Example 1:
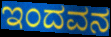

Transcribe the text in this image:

ಇಂದವನ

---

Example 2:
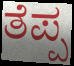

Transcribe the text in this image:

ತೆಪ್ಪ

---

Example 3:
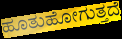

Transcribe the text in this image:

ಹೂತುಹೋಗುತ್ತದೆ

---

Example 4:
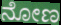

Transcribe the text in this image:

ನೋಣ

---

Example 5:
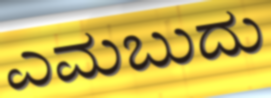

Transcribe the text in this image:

ಎಮಬುದು